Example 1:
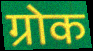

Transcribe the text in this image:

ग्रोक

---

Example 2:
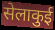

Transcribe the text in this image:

सेलाकुई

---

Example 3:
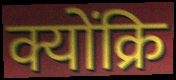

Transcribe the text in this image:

क्योंक्रि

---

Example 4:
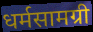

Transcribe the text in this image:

धर्मसामग्री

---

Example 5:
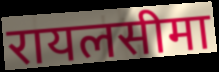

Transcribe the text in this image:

रायलसीमा